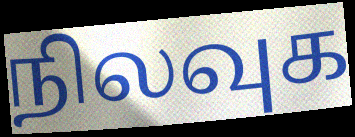
நிலவுக